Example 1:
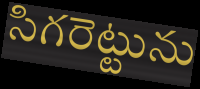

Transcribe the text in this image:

సిగరెట్టును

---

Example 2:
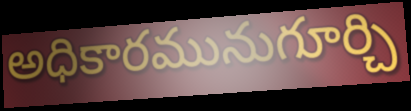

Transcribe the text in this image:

అధికారమునుగూర్చి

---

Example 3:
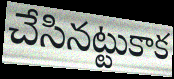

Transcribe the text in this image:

చేసినట్టుకాక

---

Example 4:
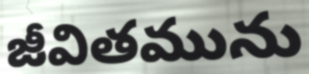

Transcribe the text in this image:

జీవితమును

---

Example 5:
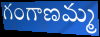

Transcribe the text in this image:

గంగాణమ్మ